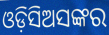
ଓଡ଼ିସିଅସଙ୍କର